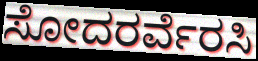
ಸೋದರರ್ವೆರಸಿ